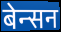
बेन्सन